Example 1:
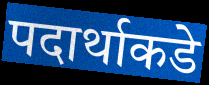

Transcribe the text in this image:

पदार्थाकडे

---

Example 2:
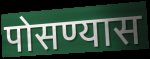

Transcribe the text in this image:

पोसण्यास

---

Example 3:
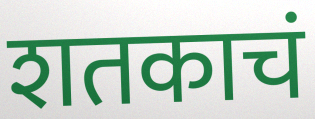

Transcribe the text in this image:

शतकाचं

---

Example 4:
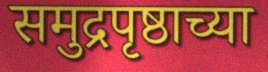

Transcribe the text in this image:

समुद्रपृष्ठाच्या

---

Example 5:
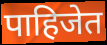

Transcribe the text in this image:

पाहिजेत